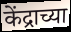
केंद्राच्या